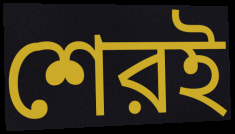
শেরই